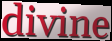
divine